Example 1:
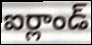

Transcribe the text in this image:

ఐర్లాండ్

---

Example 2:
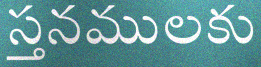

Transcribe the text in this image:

స్తనములకు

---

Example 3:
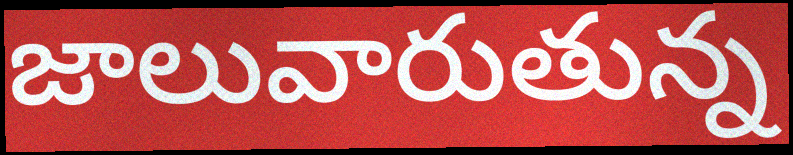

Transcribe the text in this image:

జాలువారుతున్న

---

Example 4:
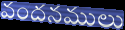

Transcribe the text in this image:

వందనములు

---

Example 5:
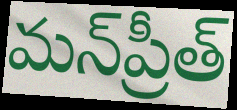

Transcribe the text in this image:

మన్‌ప్రీత్